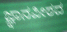
ಜ್ಞಾನಪೀಠದ